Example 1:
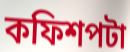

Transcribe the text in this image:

কফিশপটা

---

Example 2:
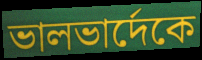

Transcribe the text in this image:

ভালভার্দেকে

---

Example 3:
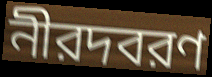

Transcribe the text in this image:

নীরদবরণ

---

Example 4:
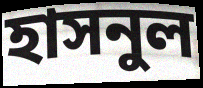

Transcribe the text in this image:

হাসনুল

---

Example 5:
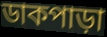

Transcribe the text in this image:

ডাকপাড়া